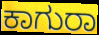
ಕಾಗುರಾ